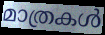
മാത്രകൾ